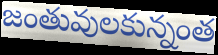
జంతువులకున్నంత